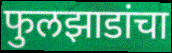
फुलझाडांचा